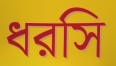
ধরসি